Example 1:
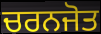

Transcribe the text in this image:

ਚਰਨਜੋਤ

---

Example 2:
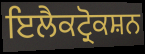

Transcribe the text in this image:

ਇਲੈਕਟ੍ਰੋਕਸ਼ਨ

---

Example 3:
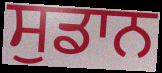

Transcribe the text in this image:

ਸੁਡਾਨ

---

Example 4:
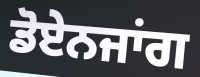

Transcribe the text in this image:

ਡੋਏਨਜਾਂਗ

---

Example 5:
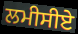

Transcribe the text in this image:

ਲਮੀਸੀਏ